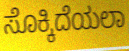
ಸೊಕ್ಕಿದೆಯಲಾ